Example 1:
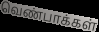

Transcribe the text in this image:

வெண்பாக்கள்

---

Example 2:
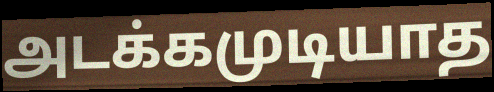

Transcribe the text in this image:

அடக்கமுடியாத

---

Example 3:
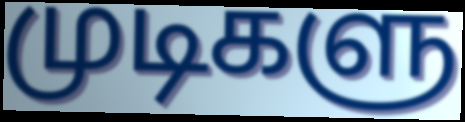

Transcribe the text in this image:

முடிகளு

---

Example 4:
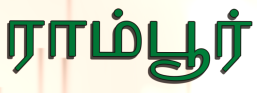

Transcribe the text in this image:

ராம்பூர்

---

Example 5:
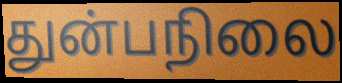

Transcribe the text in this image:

துன்பநிலை